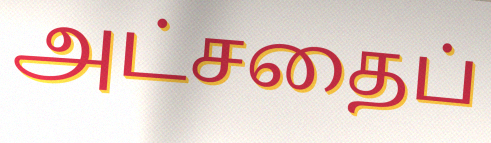
அட்சதைப்